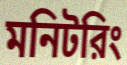
মনিটরিং